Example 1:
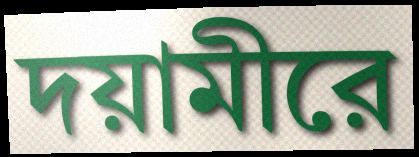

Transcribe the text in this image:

দয়ামীরে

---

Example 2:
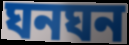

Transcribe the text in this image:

ঘনঘন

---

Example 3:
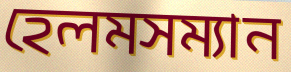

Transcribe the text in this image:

হেলমসম্যান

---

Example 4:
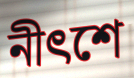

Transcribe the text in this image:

নীৎশে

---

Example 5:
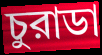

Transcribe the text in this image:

চুরাডা